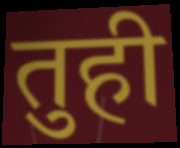
तुही